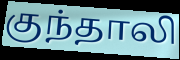
குந்தாலி